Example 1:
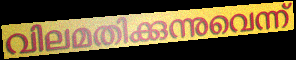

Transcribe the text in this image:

വിലമതിക്കുന്നുവെന്ന്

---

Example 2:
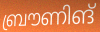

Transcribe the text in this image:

ബ്രൗണിങ്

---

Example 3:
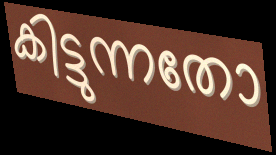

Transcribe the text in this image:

കിട്ടുന്നതോ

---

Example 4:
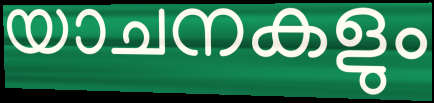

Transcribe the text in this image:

യാചനകളും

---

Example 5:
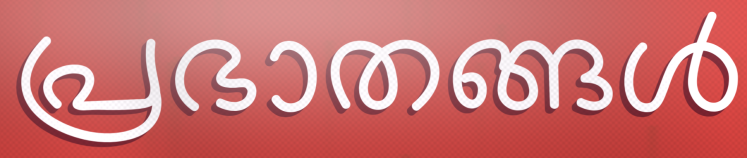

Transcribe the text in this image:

പ്രഭാതങ്ങൾ